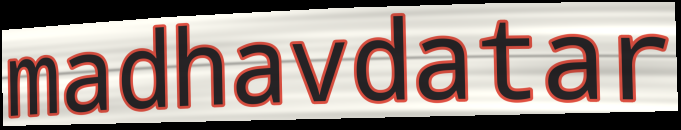
madhavdatar